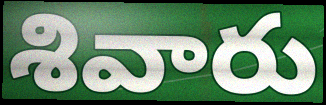
శివారు